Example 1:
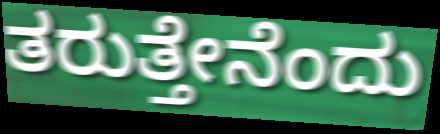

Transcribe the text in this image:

ತರುತ್ತೇನೆಂದು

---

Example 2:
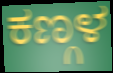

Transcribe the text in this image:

ಕಣ್ಗಳ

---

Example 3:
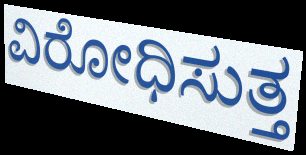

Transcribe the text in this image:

ವಿರೋಧಿಸುತ್ತ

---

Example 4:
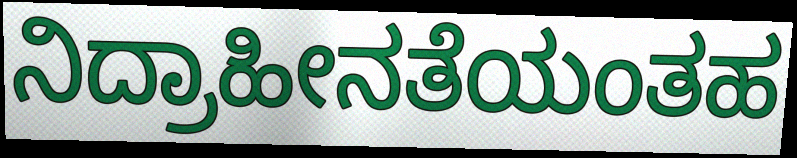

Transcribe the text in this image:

ನಿದ್ರಾಹೀನತೆಯಂತಹ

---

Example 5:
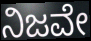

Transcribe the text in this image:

ನಿಜವೇ